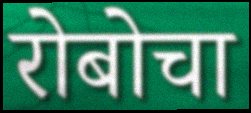
रोबोचा